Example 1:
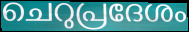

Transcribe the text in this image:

ചെറുപ്രദേശം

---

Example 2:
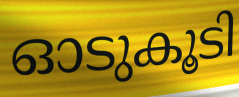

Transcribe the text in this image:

ഓടുകൂടി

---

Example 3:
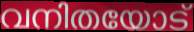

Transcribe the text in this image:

വനിതയോട്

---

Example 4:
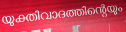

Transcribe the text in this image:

യുക്തിവാദത്തിന്റെയും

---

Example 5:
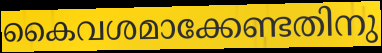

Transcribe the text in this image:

കൈവശമാക്കേണ്ടതിനു